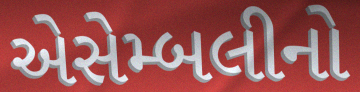
એસેમ્બલીનો